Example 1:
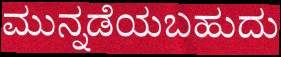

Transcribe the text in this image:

ಮುನ್ನಡೆಯಬಹುದು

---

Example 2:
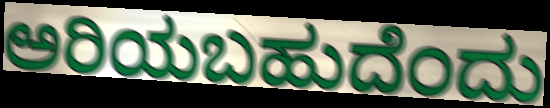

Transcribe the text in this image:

ಅರಿಯಬಹುದೆಂದು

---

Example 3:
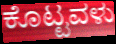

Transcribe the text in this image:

ಕೊಟ್ಟವಳು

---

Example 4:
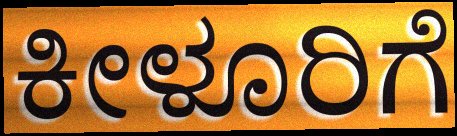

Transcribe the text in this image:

ಕೀಳೂರಿಗೆ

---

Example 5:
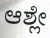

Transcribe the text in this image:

ಆಶ್ಲೇ